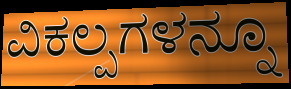
ವಿಕಲ್ಪಗಳನ್ನೂ